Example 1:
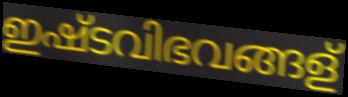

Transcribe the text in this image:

ഇഷ്ടവിഭവങ്ങള്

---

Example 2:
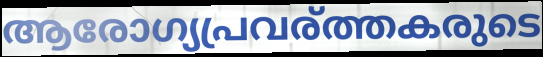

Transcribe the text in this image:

ആരോഗ്യപ്രവര്ത്തകരുടെ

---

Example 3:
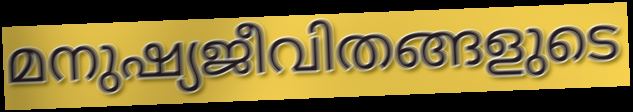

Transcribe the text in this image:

മനുഷ്യജീവിതങ്ങളുടെ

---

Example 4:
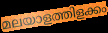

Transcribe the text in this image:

മലയാളത്തിളക്കം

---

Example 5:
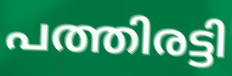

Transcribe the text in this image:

പത്തിരട്ടി